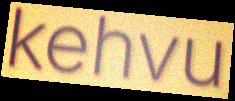
kehvu